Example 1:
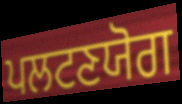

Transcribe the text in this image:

ਪਲਟਣਯੋਗ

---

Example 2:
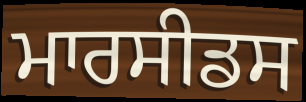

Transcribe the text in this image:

ਮਾਰਸੀਡਸ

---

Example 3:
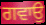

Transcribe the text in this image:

ਗਵਾਉ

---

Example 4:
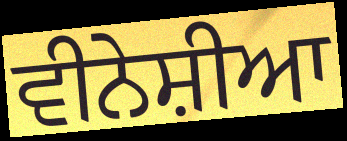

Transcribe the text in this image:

ਵੀਨੇਸ਼ੀਆ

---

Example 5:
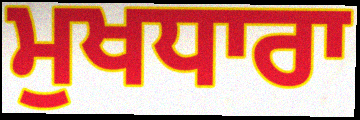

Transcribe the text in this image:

ਮੁਖਧਾਰਾ